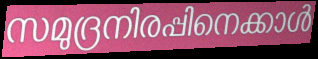
സമുദ്രനിരപ്പിനെക്കാൾ